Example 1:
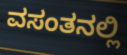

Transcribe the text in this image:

ವಸಂತನಲ್ಲಿ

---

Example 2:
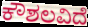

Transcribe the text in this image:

ಕೌಶಲವಿದೆ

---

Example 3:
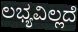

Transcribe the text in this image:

ಲಭ್ಯವಿಲ್ಲದೆ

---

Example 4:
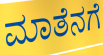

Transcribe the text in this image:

ಮಾತೆನಗೆ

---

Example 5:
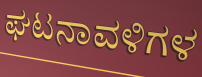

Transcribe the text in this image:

ಘಟನಾವಳಿಗಳ